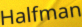
Halfman